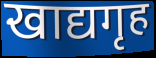
खाद्यगृह